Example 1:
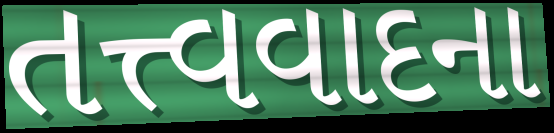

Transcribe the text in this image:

તત્ત્વવાદના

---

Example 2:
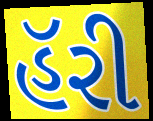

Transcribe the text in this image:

હૅરી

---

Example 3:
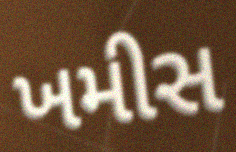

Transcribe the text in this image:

ખમીસ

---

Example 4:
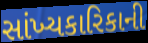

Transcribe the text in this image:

સાંખ્યકારિકાની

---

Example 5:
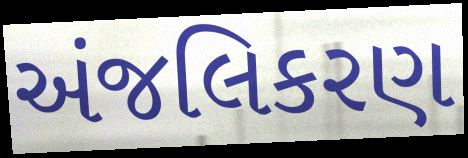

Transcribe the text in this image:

અંજલિકરણ